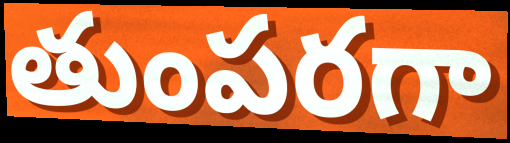
తుంపరగా